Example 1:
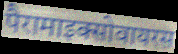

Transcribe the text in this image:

पैरामाइक्सोवायरस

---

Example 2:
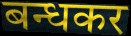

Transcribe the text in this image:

बन्धकर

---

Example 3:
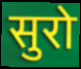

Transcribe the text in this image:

सुरो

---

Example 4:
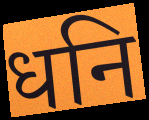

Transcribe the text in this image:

धनि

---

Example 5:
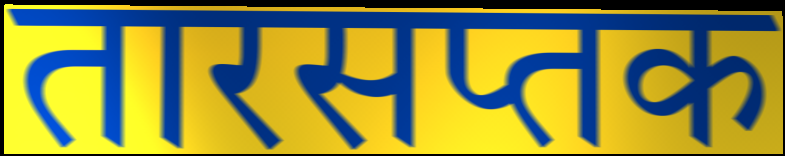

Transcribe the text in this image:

तारसप्तक